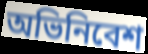
অভিনিবেশ